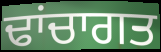
ਢਾਂਚਾਗਤ